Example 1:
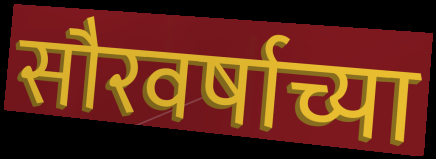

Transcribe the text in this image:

सौरवर्षाच्या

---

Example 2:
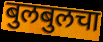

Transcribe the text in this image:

बुलबुलचा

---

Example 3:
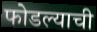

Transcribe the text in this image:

फोडल्याची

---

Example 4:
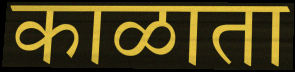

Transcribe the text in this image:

काळाता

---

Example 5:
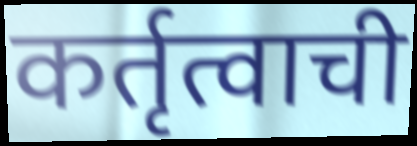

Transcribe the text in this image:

कर्तृत्वाची